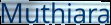
Muthiara